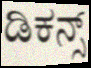
ಡಿಕನ್ಸ್